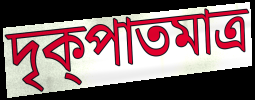
দৃক্পাতমাত্র